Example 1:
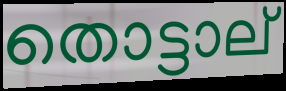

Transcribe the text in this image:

തൊട്ടാല്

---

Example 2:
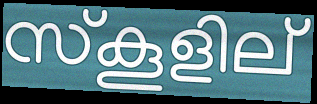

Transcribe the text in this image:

സ്കൂളില്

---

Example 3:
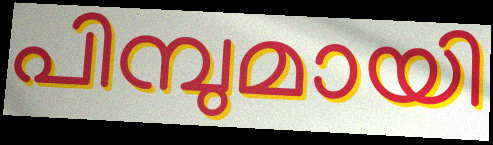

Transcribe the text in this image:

പിമ്പുമായി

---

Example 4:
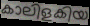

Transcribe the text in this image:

കാലിളകിയ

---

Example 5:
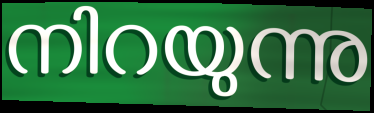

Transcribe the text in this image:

നിറയുന്നു